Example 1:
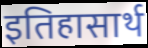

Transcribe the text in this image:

इतिहासार्थ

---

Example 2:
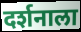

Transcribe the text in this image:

दर्शनाला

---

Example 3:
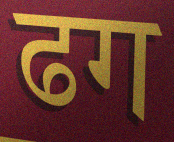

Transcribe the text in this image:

ढग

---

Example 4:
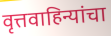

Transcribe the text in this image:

वृत्तवाहिन्यांचा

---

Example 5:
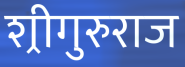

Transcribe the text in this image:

श्रीगुरुराज